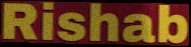
Rishab